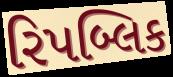
રિપબ્લિક